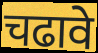
चढावे